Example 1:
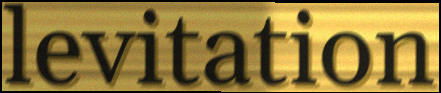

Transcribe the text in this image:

levitation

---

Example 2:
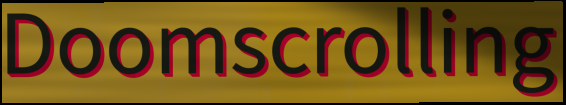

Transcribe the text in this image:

Doomscrolling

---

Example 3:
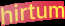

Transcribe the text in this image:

hirtum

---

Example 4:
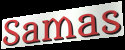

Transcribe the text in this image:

Samas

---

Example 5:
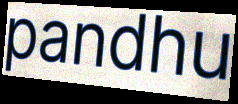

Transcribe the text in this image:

pandhu